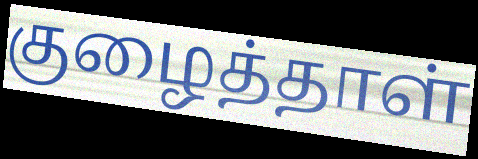
குழைத்தாள்